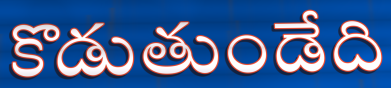
కొడుతుండేది